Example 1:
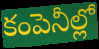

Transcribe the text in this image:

కంపెనీల్లో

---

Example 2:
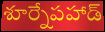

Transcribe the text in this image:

శూర్నేపహాడ్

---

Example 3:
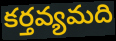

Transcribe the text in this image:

కర్తవ్యమది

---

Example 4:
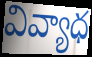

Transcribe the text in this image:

వివ్యాధ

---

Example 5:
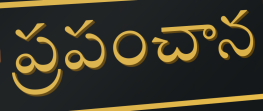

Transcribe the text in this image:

ప్రపంచాన